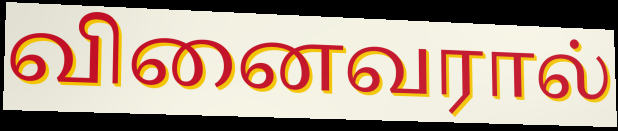
வினைவரால்